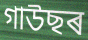
গাউছৰ